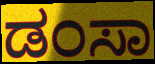
ಡಂಸಾ